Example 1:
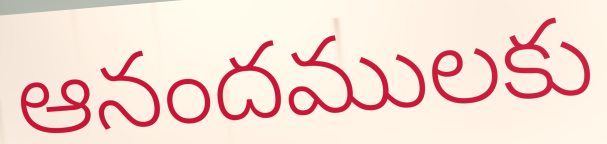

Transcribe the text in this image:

ఆనందములకు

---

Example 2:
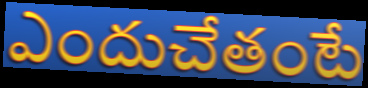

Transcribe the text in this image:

ఎందుచేతంటే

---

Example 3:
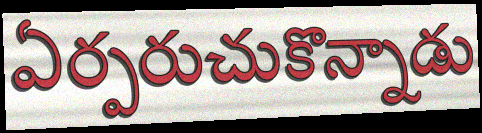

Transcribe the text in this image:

ఏర్పరుచుకొన్నాడు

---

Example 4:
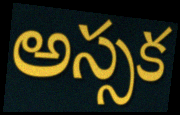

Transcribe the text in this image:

అస్సక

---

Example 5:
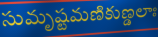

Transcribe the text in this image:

సుమృష్టమణికుణ్డలాః